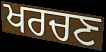
ਖਰਚਣ